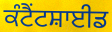
ਕੰਟੈਂਟਸ਼ਾਈਡ